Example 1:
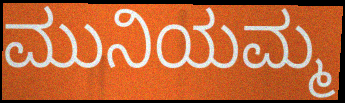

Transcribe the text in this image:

ಮುನಿಯಮ್ಮ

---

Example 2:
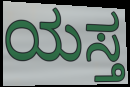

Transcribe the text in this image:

ಯಸ್ತ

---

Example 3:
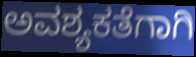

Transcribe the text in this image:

ಅವಶ್ಯಕತೆಗಾಗಿ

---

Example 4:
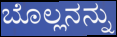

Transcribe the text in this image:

ಬೊಲ್ಲನನ್ನು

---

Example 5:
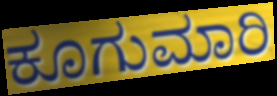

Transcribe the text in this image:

ಕೂಗುಮಾರಿ